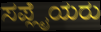
ಸಪ್ಲೈಯರು